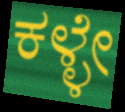
ಕಳ್ಳೇ